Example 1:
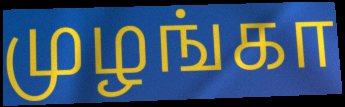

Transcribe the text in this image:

முழங்கா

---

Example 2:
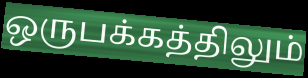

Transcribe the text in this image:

ஒருபக்கத்திலும்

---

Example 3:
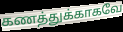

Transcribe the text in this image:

கணத்துக்காகவே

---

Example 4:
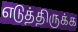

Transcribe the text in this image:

எடுத்திருக்க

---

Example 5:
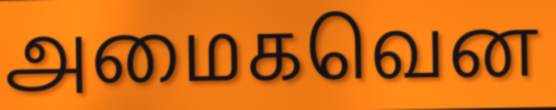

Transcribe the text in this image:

அமைகவென